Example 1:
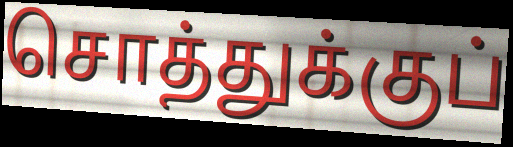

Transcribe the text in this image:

சொத்துக்குப்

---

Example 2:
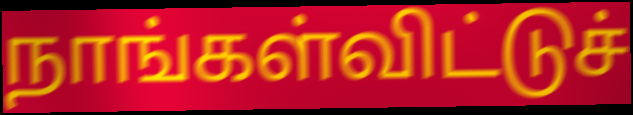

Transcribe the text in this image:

நாங்கள்விட்டுச்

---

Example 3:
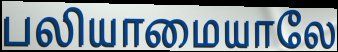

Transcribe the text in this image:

பலியாமையாலே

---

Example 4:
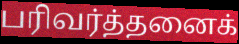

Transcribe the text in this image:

பரிவர்த்தனைக்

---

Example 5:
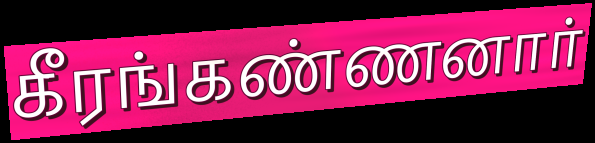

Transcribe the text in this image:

கீரங்கண்ணனார்